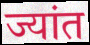
ज्यांत